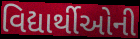
વિદ્યાર્થીઓની